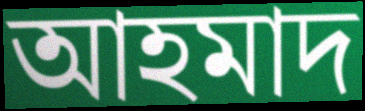
আহমাদ